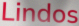
Lindos